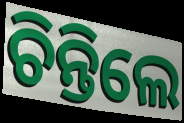
ଚିନ୍ତିଲେ